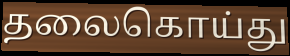
தலைகொய்து